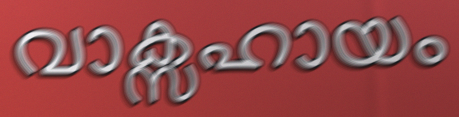
വാക്സഹായം